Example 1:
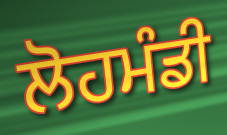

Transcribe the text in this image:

ਲੋਹਮੰਡੀ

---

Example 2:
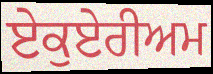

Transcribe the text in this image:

ਏਕੁਏਰੀਅਮ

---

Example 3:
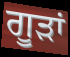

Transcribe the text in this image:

ਗੂੜਾਂ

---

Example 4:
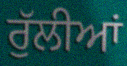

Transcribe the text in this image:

ਰੁੱਲੀਆਂ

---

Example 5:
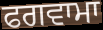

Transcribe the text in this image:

ਫਗਵਾਮਾ